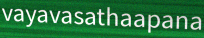
vayavasathaapana